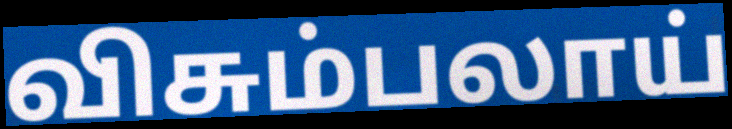
விசும்பலாய்